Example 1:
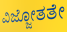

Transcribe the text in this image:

ವಿಜ್ಜೋತತೇ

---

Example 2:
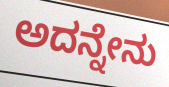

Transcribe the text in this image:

ಅದನ್ನೇನು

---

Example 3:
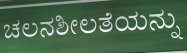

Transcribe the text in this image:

ಚಲನಶೀಲತೆಯನ್ನು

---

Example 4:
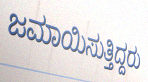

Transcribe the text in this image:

ಜಮಾಯಿಸುತ್ತಿದ್ದರು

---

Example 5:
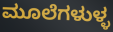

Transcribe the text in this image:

ಮೂಲೆಗಳುಳ್ಳ